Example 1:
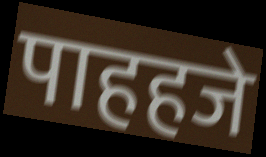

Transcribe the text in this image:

पाहहजे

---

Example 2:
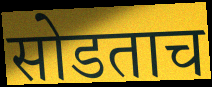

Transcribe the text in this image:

सोडताच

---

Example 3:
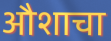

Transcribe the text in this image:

औशाचा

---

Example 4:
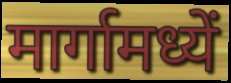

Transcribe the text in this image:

मार्गामध्यें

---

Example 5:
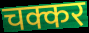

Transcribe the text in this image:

चक्कर